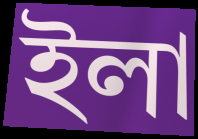
ইলা